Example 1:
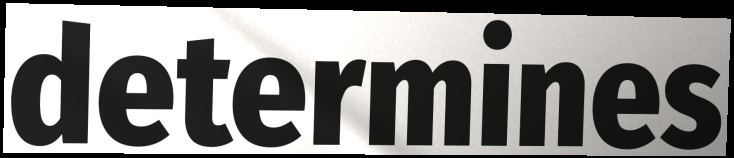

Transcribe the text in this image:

determines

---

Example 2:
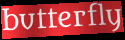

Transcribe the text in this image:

butterfly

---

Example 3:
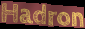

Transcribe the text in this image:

Hadron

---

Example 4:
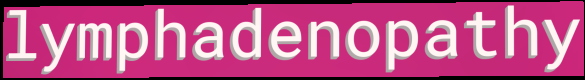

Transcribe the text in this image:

lymphadenopathy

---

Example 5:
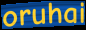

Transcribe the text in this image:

oruhai